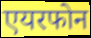
एयरफोन